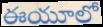
ఈయూలో